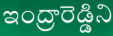
ఇంద్రారెడ్డిని